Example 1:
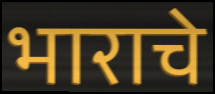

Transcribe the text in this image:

भाराचे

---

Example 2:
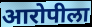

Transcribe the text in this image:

आरोपीला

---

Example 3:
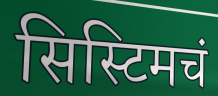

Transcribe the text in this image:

सिस्टिमचं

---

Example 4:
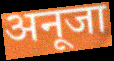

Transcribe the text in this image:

अनूजा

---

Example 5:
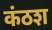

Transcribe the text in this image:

कंठश